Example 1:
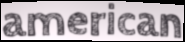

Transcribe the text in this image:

american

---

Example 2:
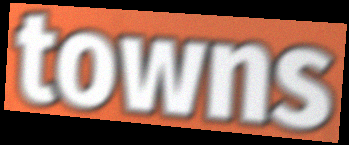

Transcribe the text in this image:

towns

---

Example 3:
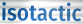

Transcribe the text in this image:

isotactic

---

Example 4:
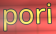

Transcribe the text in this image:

pori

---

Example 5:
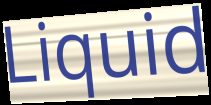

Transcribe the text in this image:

Liquid